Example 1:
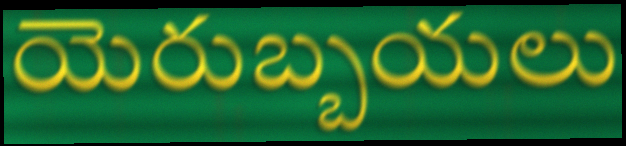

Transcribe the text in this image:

యెరుబ్బయలు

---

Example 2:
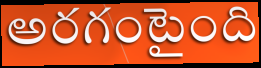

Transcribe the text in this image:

అరగంటైంది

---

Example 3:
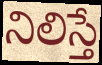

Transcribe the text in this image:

నిలిస్తే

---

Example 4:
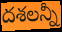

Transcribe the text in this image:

దశలన్నీ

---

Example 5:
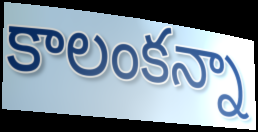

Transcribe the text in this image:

కాలంకన్నా